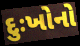
દુઃખોનો